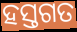
ହସ୍ତଗତ